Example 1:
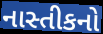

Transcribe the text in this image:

નાસ્તીકનો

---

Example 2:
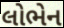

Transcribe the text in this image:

લોભેન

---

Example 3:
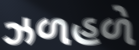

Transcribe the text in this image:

ઝળહળે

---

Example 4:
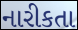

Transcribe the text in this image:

નારીકતા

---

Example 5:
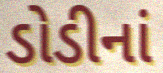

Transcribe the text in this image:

ડોડીનાં